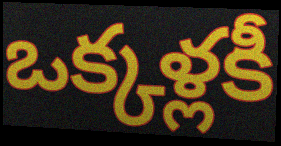
ఒక్కళ్లకీ